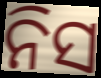
ନିସ